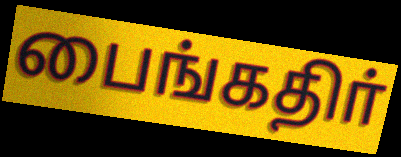
பைங்கதிர்